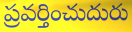
ప్రవర్తించుదురు